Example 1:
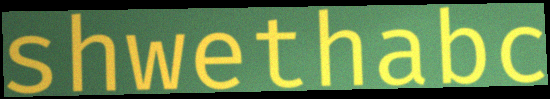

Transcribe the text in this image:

shwethabc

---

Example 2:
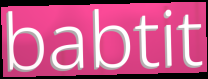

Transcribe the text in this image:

babtit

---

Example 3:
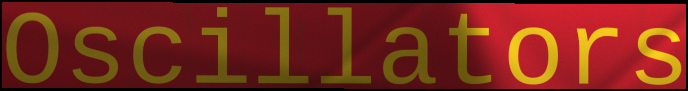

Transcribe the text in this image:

Oscillators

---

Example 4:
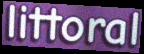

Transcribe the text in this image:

littoral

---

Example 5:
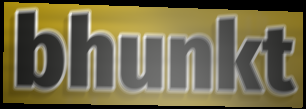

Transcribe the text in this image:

bhunkt